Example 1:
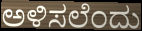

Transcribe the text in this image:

ಅಳಿಸಲೆಂದು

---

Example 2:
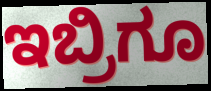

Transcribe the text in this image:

ಇಬ್ರಿಗೂ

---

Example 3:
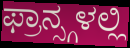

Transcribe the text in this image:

ಫ್ರಾನ್ಸ್ಗಳಲ್ಲಿ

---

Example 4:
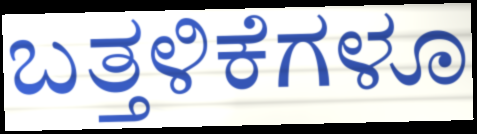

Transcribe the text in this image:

ಬತ್ತಳಿಕೆಗಳೂ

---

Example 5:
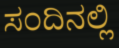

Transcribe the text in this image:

ಸಂದಿನಲ್ಲಿ